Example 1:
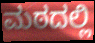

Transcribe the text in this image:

ಮಠದಲ್ಲಿ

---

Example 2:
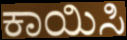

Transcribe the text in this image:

ಕಾಯಿಸಿ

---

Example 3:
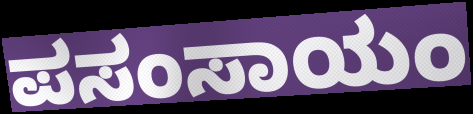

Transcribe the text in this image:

ಪಸಂಸಾಯಂ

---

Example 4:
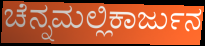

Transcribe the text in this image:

ಚೆನ್ನಮಲ್ಲಿಕಾರ್ಜುನ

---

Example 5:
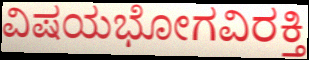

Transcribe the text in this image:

ವಿಷಯಭೋಗವಿರಕ್ತಿ